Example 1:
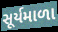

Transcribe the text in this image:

સૂર્યમાળા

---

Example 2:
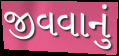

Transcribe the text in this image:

જીવવાનું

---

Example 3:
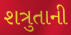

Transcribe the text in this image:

શત્રુતાની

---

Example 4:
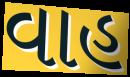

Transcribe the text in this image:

વાહ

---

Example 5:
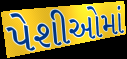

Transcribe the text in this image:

પેશીઓમાં